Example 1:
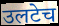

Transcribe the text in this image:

उलटेच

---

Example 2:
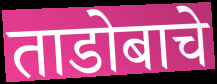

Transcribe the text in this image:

ताडोबाचे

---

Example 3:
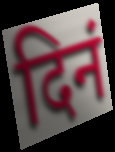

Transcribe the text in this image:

दिनं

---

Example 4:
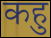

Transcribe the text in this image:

कहु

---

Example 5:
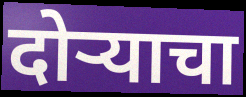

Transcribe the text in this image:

दोर्‍याचा